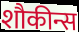
शौकीन्स